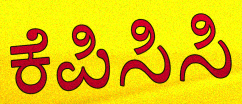
ಕೆಪಿಸಿಸಿ